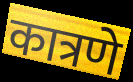
कात्रणे